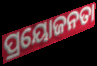
ପ୍ରୟୋଜନତା